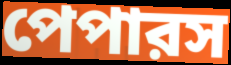
পেপারস